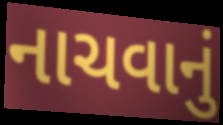
નાચવાનું